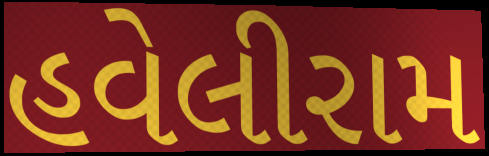
હવેલીરામ